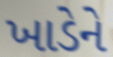
ખાડેને